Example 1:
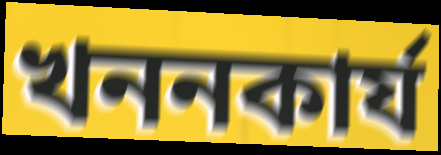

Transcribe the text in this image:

খননকাৰ্য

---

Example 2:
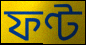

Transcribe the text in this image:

ফণ্ট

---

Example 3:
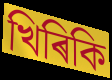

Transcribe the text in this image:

খিৰিকি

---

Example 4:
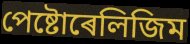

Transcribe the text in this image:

পেষ্টোৰেলিজিম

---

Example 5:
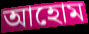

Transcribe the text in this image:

আহোম